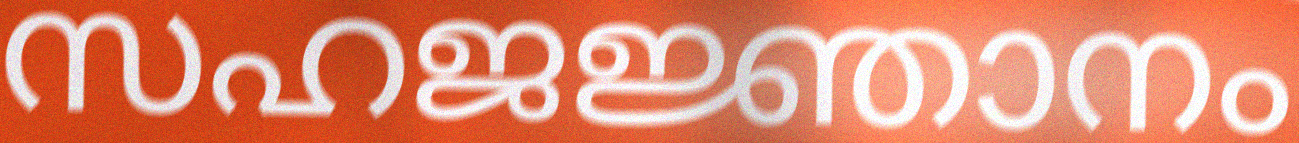
സഹജജ്ഞാനം